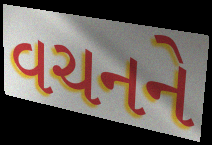
વચનને